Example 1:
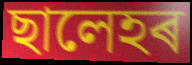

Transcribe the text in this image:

ছালেহৰ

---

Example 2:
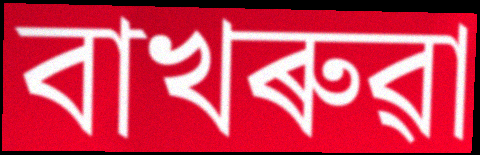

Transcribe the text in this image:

বাখৰুৱা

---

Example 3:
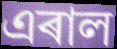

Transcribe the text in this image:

এৰাল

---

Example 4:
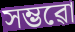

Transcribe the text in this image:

সম্ভৱো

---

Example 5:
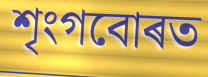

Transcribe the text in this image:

শৃংগবোৰত